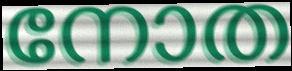
നോത